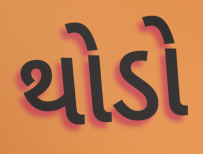
થોડો